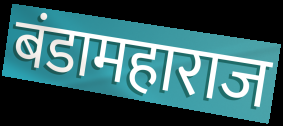
बंडामहाराज